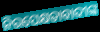
ନିରପେକ୍ଷତାବାଦୀଙ୍କ